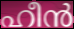
ഹീൻ